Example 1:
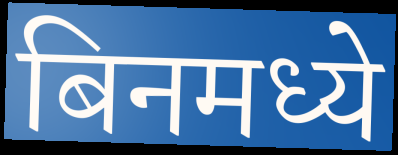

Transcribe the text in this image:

बिनमध्ये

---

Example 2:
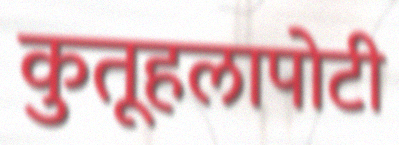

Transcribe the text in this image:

कुतूहलापोटी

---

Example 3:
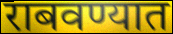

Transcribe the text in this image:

राबवण्यात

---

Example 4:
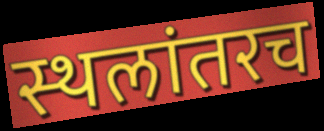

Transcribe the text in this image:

स्थलांतरच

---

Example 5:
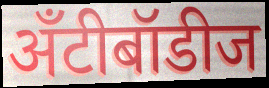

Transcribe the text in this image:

अँटीबॉडीज